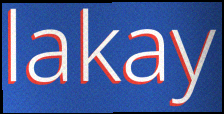
lakay